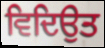
ਵਿਦਿਉਤ